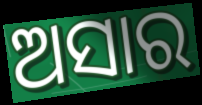
ଅସାର